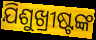
ଯିଶୁଖ୍ରୀଷ୍ଟଙ୍କ